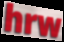
hrw